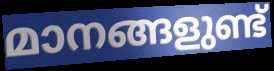
മാനങ്ങളുണ്ട്